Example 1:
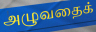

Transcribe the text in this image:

அழுவதைக்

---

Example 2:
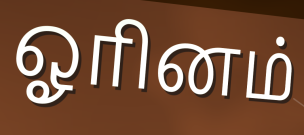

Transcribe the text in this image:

ஓரினம்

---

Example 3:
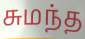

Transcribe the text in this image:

சுமந்த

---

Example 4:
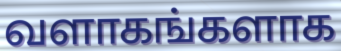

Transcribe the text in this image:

வளாகங்களாக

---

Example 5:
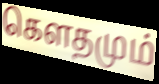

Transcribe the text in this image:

கெளதமும்